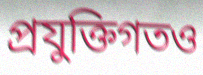
প্রযুক্তিগতও